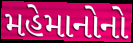
મહેમાનોનો